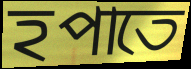
হপাতে